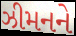
ઝીમનને